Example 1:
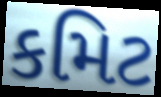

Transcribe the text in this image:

કમિટ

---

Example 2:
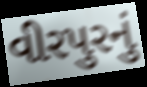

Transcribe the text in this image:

વીરપુરનું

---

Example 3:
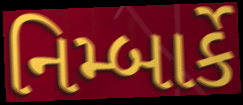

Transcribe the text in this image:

નિમ્બાર્કે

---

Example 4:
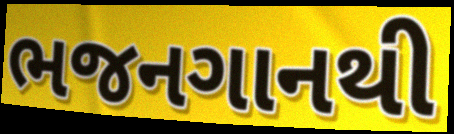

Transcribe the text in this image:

ભજનગાનથી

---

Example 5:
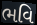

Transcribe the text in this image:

ભવિ